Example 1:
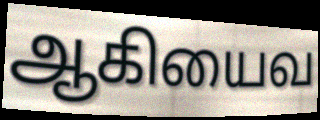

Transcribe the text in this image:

ஆகியைவ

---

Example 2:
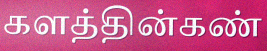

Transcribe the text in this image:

களத்தின்கண்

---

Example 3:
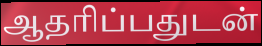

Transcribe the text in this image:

ஆதரிப்பதுடன்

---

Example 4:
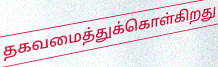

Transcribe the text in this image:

தகவமைத்துக்கொள்கிறது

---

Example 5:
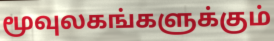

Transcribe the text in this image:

மூவுலகங்களுக்கும்